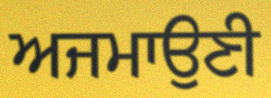
ਅਜਮਾਉਣੀ